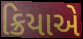
ક્રિયાએ